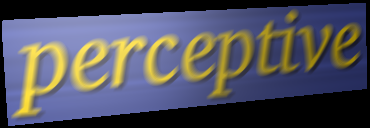
perceptive